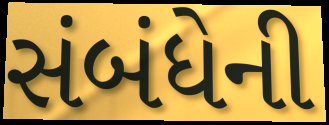
સંબંધેની